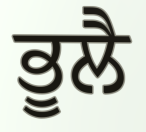
ਭੂਲੈ